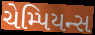
ચેમ્પિયન્સ